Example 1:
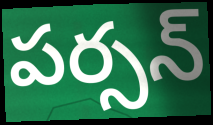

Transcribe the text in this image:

పర్సన్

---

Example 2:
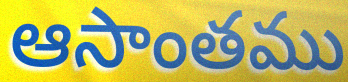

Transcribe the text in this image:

ఆసాంతము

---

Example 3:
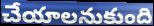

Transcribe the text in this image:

చేయాలనుకుంది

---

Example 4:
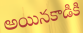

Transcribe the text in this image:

అయినకాడికి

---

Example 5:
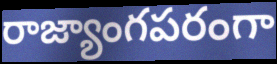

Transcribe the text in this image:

రాజ్యాంగపరంగా